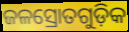
ଜଳସ୍ରୋତଗୁଡ଼ିକ